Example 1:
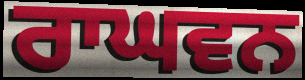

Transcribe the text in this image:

ਰਾਘਵਨ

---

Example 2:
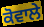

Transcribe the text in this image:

ਕੋਵਾਲੇ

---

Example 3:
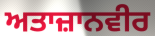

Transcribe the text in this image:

ਅਤਾਜ਼ਾਨਵੀਰ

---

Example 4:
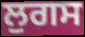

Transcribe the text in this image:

ਲੁਗਸ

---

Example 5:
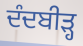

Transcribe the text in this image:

ਦੰਦਬੀੜ੍ਹ